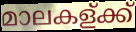
മാലകള്ക്ക്